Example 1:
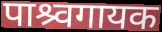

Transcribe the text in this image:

पाश्र्वगायक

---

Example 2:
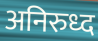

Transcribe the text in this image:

अनिरुध्द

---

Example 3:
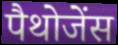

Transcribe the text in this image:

पैथोजेंस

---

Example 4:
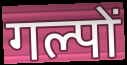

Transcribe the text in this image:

गल्पों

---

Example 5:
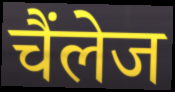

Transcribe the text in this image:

चैंलेज